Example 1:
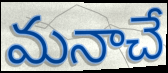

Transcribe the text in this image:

మనాచే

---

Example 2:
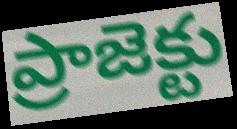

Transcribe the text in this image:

ప్రాజెక్టు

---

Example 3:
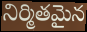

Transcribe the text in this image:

నిర్మితమైన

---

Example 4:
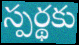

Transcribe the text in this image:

స్పర్థకు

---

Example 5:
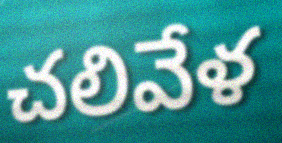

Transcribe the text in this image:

చలివేళ